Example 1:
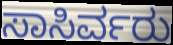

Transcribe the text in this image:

ಸಾಸಿರ್ವರು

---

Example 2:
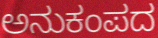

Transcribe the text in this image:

ಅನುಕಂಪದ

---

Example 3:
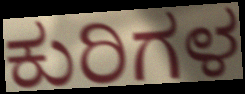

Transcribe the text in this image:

ಕುರಿಗಳ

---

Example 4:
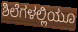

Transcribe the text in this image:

ಶಿಲೆಗಳಲ್ಲಿಯೂ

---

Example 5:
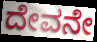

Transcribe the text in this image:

ದೇವನೇ